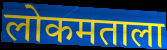
लोकमताला